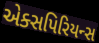
એક્સપિરિયન્સ